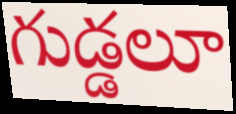
గుడ్డలూ